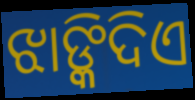
ଝାଙ୍କିଦିଏ